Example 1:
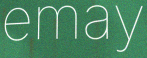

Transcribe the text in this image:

emay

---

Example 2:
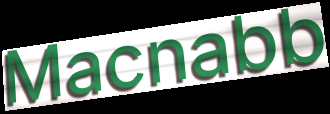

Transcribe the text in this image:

Macnabb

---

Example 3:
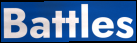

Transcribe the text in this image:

Battles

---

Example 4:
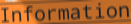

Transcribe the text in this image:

Information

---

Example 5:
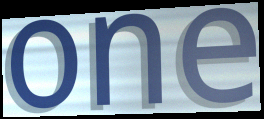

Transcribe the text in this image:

one